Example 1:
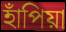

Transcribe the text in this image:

হাঁপিয়া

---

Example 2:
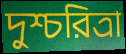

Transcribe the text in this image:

দুশ্চরিত্রা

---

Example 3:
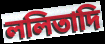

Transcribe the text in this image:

ললিতাদি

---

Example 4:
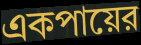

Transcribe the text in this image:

একপায়ের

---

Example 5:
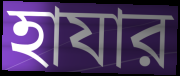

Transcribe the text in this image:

হাযার